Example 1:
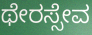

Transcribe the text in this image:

ಥೇರಸ್ಸೇವ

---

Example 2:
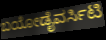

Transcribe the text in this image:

ಬಯೋಡೈವರ್ಸಿಟಿ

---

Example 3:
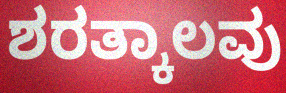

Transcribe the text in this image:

ಶರತ್ಕಾಲವು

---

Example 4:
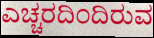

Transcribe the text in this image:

ಎಚ್ಚರದಿಂದಿರುವ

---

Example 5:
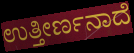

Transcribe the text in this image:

ಉತ್ತೀರ್ಣನಾದೆ